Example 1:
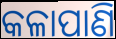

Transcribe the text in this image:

କଳାପାଣି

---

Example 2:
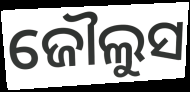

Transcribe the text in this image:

ଜୌଲୁସ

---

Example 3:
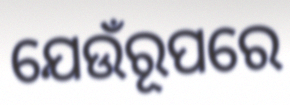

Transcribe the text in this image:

ଯେଉଁରୂପରେ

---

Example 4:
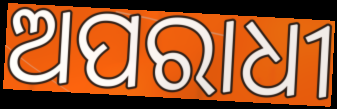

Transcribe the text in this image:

ଅପରାଧୀ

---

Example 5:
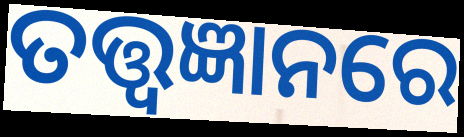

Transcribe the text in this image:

ତତ୍ତ୍ୱଜ୍ଞାନରେ